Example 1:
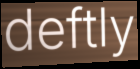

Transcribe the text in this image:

deftly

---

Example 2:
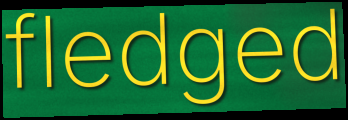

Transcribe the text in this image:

fledged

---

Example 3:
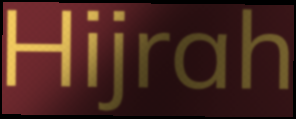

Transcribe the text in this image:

Hijrah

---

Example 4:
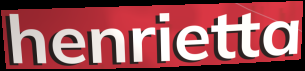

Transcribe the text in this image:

henrietta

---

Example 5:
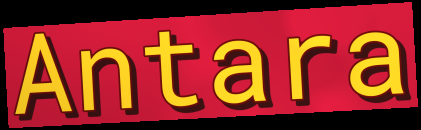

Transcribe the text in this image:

Antara